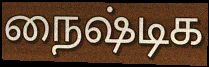
நைஷ்டிக